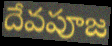
దేవపూజ